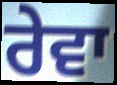
ਰੇਵਾ